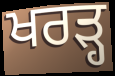
ਖਰੜ੍ਹ